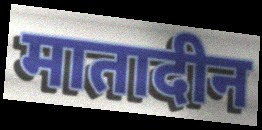
मातादीन